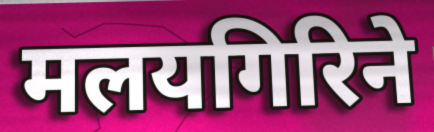
मलयगिरिने